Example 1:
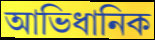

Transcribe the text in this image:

আভিধানিক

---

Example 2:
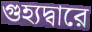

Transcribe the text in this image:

গুহ্যদ্বারে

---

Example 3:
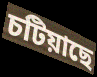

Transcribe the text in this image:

চটিয়াছে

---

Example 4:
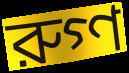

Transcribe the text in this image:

রুগ্ণ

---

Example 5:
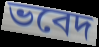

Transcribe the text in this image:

ভবেদ